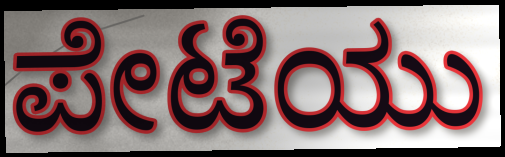
ಪೇಟೆಯು